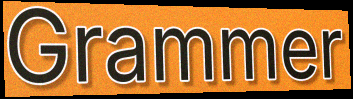
Grammer